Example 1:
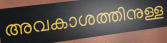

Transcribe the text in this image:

അവകാശത്തിനുള്ള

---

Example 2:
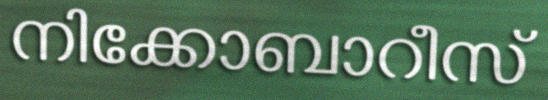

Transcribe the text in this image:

നിക്കോബാറീസ്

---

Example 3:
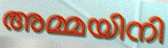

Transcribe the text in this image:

അമ്മയിനി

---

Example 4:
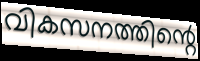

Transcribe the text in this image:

വികസനത്തിന്റെ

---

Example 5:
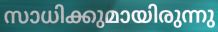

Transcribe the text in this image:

സാധിക്കുമായിരുന്നു